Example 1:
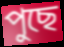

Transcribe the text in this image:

পুছে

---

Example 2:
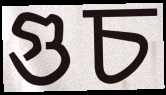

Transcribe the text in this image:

গুচ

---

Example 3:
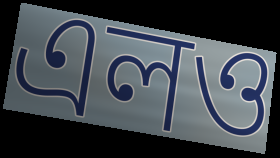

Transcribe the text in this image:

এলও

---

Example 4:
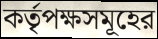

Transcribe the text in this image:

কর্তৃপক্ষসমূহের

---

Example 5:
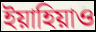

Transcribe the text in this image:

ইয়াহিয়াও